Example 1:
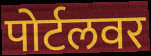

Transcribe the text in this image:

पोर्टलवर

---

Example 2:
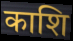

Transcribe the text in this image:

काशि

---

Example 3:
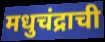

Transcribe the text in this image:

मधुचंद्राची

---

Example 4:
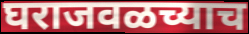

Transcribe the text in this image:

घराजवळच्याच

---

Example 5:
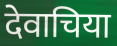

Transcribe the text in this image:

देवाचिया